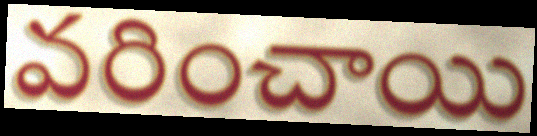
వరించాయి